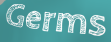
Germs